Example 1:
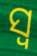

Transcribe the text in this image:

ସ୍ୱ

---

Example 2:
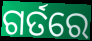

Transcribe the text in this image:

ଗର୍ତରେ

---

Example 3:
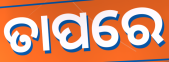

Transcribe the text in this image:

ତାପରେ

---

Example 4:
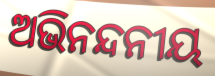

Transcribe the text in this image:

ଅଭିନନ୍ଦନୀୟ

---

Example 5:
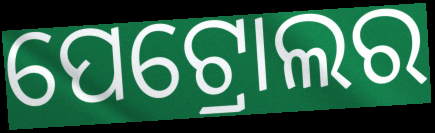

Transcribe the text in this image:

ପେଟ୍ରୋଲର